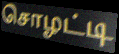
சொழட்டி